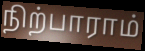
நிற்பாராம்